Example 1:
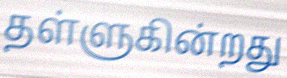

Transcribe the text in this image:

தள்ளுகின்றது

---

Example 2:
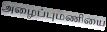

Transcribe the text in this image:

அழைப்புமணியை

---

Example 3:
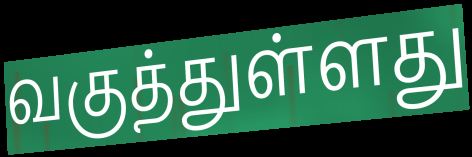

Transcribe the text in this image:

வகுத்துள்ளது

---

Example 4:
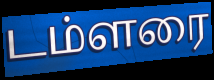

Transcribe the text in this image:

டம்ளரை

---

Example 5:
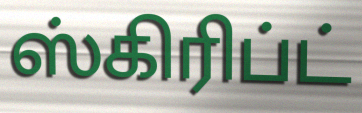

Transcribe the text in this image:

ஸ்கிரிப்ட்